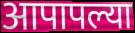
आपापल्या